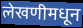
लेखणीमधून